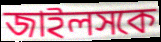
জাইলসকে